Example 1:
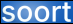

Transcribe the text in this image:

soort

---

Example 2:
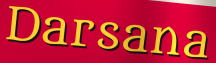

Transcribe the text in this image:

Darsana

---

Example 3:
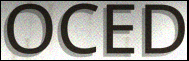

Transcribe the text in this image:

OCED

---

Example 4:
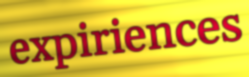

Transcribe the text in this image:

expiriences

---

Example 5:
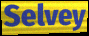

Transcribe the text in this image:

Selvey